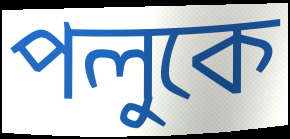
পলুকে